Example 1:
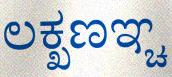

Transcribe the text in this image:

ಲಕ್ಖಣಞ್ಚ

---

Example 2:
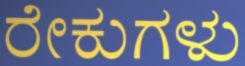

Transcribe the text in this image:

ರೇಕುಗಳು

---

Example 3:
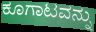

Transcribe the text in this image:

ಕೂಗಾಟವನ್ನು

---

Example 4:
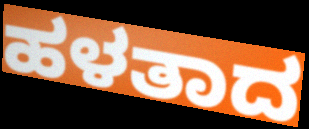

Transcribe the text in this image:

ಹಳತಾದ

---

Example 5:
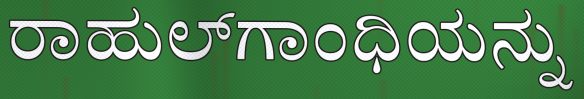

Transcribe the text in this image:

ರಾಹುಲ್‌ಗಾಂಧಿಯನ್ನು